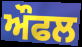
ਔਫਲ